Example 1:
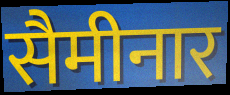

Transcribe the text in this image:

सैमीनार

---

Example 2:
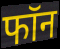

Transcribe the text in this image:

फॉन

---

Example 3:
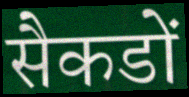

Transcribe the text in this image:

सैकडों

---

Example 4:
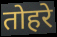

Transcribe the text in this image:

तोहरे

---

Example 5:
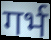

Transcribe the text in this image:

गर्भ